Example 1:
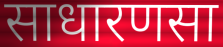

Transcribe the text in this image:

साधारणसा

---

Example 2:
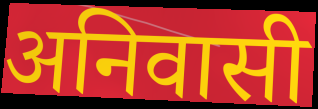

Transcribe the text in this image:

अनिवासी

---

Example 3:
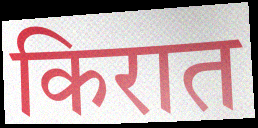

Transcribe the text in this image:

किरात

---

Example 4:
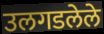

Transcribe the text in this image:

उलगडलेले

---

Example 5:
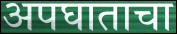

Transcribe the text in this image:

अपघाताचा